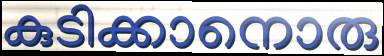
കുടിക്കാനൊരു